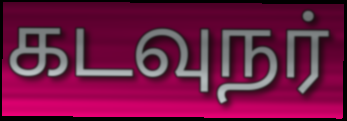
கடவுநர்